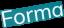
Forma